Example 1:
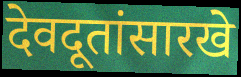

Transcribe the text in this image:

देवदूतांसारखे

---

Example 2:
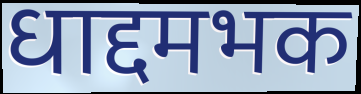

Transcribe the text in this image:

धाद्दमभक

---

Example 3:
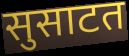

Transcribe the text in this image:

सुसाटत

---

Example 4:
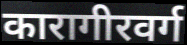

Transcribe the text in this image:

कारागीरवर्ग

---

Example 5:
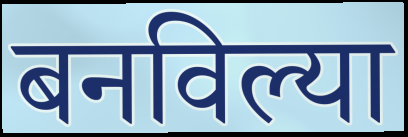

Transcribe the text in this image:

बनविल्या